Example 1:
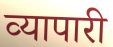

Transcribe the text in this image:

व्‍यापारी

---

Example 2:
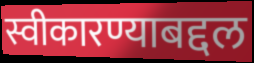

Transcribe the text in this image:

स्वीकारण्याबद्दल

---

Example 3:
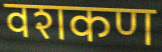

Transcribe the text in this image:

वशकण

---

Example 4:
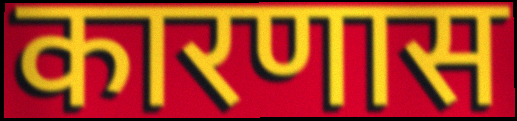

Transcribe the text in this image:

कारणास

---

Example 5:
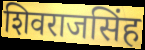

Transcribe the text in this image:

शिवराजसिंह